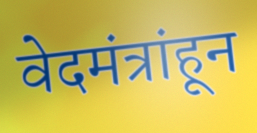
वेदमंत्रांहून